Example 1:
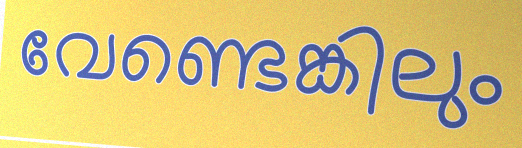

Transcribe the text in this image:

വേണ്ടെങ്കിലും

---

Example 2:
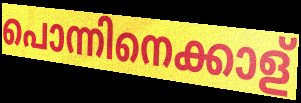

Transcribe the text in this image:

പൊന്നിനെക്കാള്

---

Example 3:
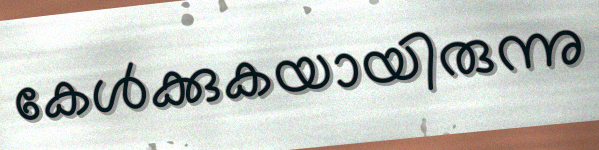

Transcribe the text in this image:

കേൾക്കുകയായിരുന്നു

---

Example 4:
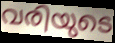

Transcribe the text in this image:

വരിയുടെ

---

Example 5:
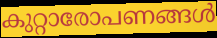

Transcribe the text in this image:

കുറ്റാരോപണങ്ങൾ